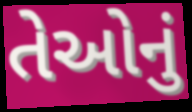
તેઓનું